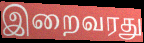
இறைவரது